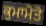
ਕੁਮਾਮੋਤੋ